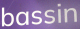
bassin